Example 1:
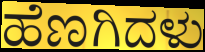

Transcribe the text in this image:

ಹೆಣಗಿದಳು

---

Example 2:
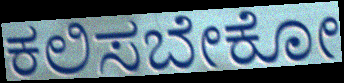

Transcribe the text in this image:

ಕಲಿಸಬೇಕೋ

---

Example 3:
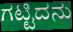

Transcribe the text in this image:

ಗಟ್ಟಿದನು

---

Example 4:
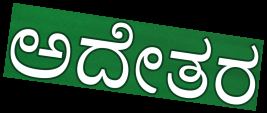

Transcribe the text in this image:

ಅದೇತರ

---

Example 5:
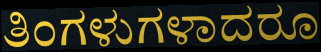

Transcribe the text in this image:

ತಿಂಗಳುಗಳಾದರೂ